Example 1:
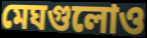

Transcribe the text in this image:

মেঘগুলোও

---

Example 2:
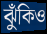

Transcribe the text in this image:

ঝুঁকিও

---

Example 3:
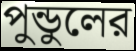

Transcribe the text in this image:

পুন্ডুলের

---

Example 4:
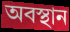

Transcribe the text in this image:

অবস্থান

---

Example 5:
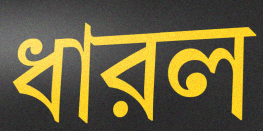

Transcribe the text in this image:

ধারল